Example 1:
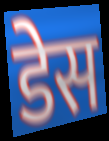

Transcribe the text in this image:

डेस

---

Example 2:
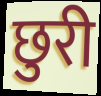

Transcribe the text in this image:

छुरी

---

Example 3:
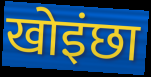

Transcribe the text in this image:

खोइंछा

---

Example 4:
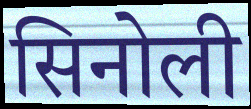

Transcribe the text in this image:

सिनोली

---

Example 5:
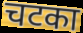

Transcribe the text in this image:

चटका